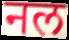
नल